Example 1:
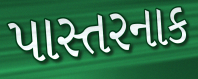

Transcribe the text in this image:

પાસ્તરનાક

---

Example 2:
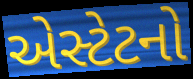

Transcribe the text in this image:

એસ્ટેટનો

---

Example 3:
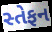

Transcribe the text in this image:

સ્તેફન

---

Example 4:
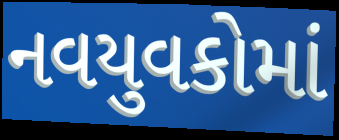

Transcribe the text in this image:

નવયુવકોમાં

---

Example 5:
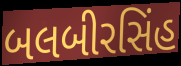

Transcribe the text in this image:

બલબીરસિંહ